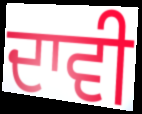
ਦਾਵੀ